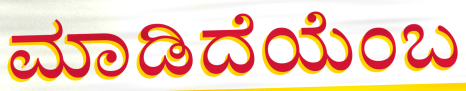
ಮಾಡಿದೆಯೆಂಬ